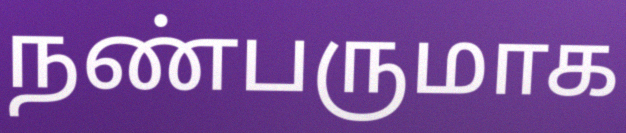
நண்பருமாக